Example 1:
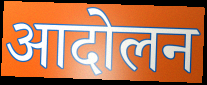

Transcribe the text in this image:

आदोलन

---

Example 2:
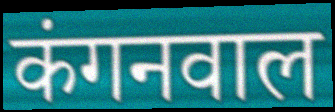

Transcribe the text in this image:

कंगनवाल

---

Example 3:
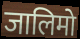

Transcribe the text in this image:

जालिमो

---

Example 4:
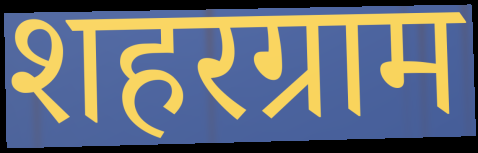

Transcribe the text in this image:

शहरग्राम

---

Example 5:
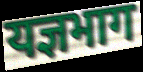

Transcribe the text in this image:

यज्ञभाग